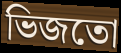
ভিজতো